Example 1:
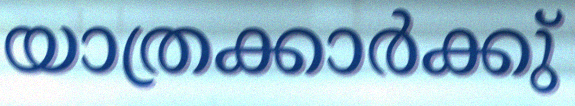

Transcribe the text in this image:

യാത്രക്കാർക്കു്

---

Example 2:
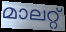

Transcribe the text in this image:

മാലറ്റ്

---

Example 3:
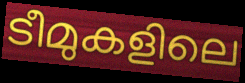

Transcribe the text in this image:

ടീമുകളിലെ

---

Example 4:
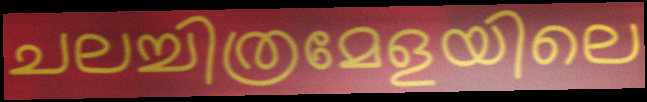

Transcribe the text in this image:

ചലച്ചിത്രമേളയിലെ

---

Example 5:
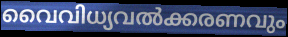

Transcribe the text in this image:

വൈവിധ്യവൽക്കരണവും